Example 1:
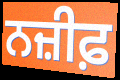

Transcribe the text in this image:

ਨਜ਼ੀਫ਼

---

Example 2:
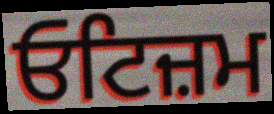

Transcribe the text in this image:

ਓਟਿਜ਼ਮ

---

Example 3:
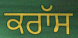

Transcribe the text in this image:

ਕਰਾੱਸ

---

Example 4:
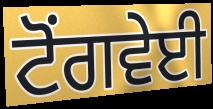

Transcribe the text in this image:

ਟੋਂਗਵੇਈ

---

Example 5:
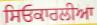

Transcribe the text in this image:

ਸਿਓਕਾਰਲੀਆ